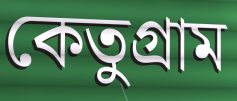
কেতুগ্রাম